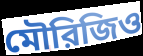
মৌরিজিও